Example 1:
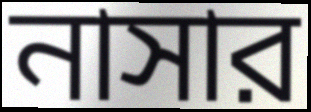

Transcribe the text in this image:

নাসার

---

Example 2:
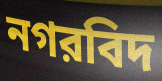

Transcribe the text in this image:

নগরবিদ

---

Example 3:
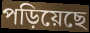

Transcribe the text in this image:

পড়িয়েছে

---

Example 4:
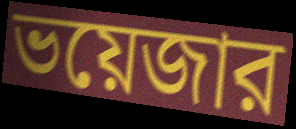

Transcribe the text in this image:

ভয়েজার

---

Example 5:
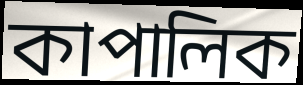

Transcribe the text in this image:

কাপালিক